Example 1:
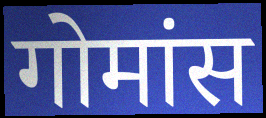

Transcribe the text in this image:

गोमांस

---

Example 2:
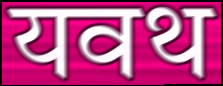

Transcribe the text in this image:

यवथ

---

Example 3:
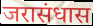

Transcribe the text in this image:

जरासंधास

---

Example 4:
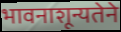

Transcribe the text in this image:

भावनाशून्यतेने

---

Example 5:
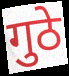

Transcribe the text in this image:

गुठे